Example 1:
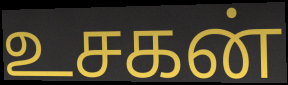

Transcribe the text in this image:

உசகன்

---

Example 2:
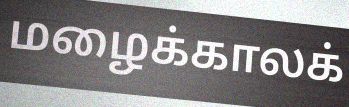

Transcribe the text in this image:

மழைக்காலக்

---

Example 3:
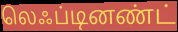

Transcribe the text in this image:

லெஃப்டினண்ட்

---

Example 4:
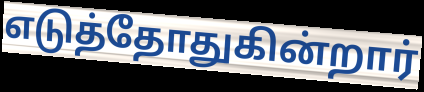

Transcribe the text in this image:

எடுத்தோதுகின்றார்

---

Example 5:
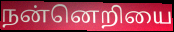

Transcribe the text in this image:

நன்னெறியை